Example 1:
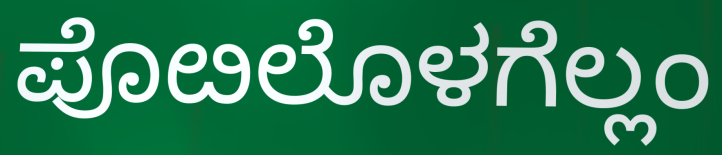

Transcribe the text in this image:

ಪೊೞಲೊಳಗೆಲ್ಲಂ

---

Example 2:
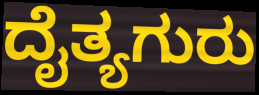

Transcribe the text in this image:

ದೈತ್ಯಗುರು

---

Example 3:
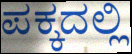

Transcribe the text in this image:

ಪಕ್ಕದಲ್ಲಿ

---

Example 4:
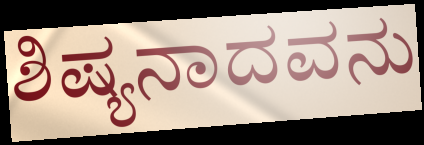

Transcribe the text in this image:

ಶಿಷ್ಯನಾದವನು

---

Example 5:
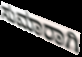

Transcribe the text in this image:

ಸುಮಾರಾಗಿ